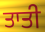
ਤਾਤੀ